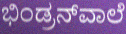
ಭಿಂಡ್ರನ್‌ವಾಲೆ